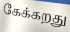
கேக்கறது